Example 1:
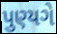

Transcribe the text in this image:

પુણ્યગે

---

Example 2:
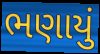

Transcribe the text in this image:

ભણાયું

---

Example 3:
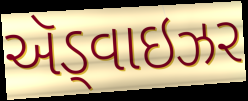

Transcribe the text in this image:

ઍડ્વાઇઝર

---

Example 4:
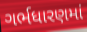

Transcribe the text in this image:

ગર્ભધારણમાં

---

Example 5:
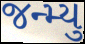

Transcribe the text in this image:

જન્મ્યુ